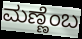
ಮಣ್ಣೆಂಬ